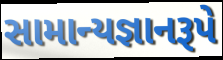
સામાન્યજ્ઞાનરૂપે